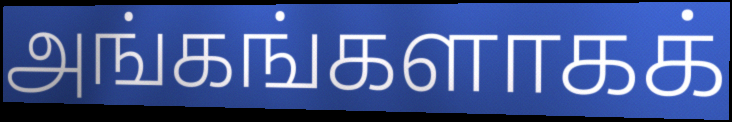
அங்கங்களாகக்